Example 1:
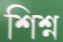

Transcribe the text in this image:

শিশ্ন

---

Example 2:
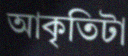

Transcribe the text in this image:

আকৃতিটা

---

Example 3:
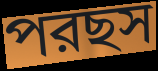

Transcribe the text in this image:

পরছস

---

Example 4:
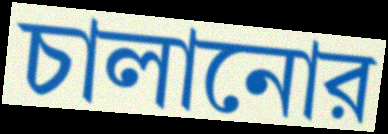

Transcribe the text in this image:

চালানোর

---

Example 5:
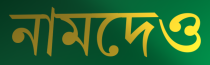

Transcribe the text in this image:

নামদেও